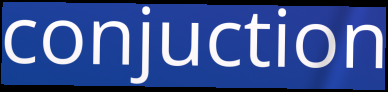
conjuction